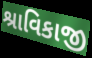
શ્રાવિકાજી